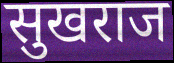
सुखराज